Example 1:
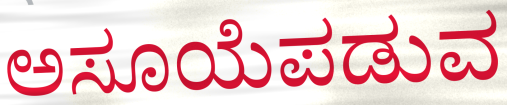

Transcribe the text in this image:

ಅಸೂಯೆಪಡುವ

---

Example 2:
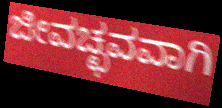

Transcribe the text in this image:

ಜೀವಚ್ಛವವಾಗಿ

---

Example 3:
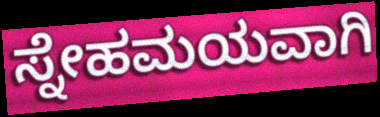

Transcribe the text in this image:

ಸ್ನೇಹಮಯವಾಗಿ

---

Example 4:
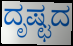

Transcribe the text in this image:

ದೃಷ್ಟದ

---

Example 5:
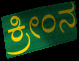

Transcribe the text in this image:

ಕ್ರೀಂನ